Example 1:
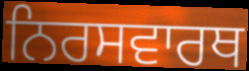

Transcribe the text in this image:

ਨਿਰਸਵਾਰਥ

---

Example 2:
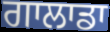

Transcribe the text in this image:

ਗਾਲਾਡਾ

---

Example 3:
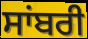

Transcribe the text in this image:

ਸਾਂਬਰੀ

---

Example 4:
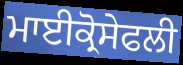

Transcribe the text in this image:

ਮਾਈਕ੍ਰੋਸੇਫਲੀ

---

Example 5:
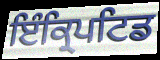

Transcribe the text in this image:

ਇੰਕ੍ਰਿਪਟਿਡ